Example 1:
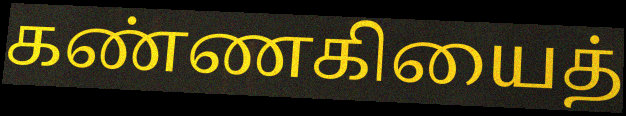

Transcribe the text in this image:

கண்ணகியைத்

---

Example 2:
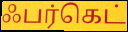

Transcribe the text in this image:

ஃபர்கெட்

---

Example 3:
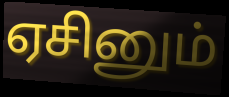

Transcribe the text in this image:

ஏசினும்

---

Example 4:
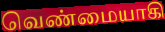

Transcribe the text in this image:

வெண்மையாகி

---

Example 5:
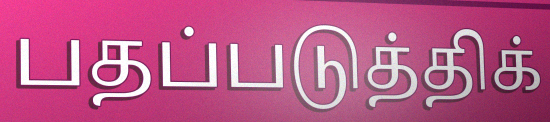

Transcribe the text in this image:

பதப்படுத்திக்